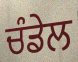
ਚੰਡੇਲ